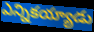
ఎన్నికయ్యాడు